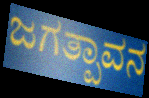
ಜಗತ್ಪಾವನ